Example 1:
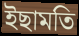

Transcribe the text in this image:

ইছামতি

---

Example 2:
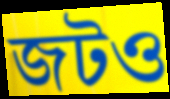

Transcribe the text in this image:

জটও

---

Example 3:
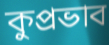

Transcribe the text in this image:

কুপ্রভাব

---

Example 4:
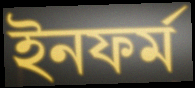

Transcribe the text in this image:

ইনফর্ম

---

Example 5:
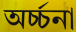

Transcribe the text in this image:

অর্চ্চনা